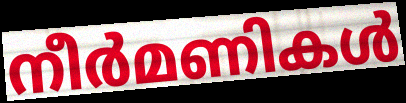
നീർമണികൾ